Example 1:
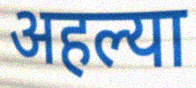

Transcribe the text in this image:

अहल्या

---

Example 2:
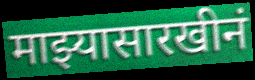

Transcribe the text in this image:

माझ्यासारखीनं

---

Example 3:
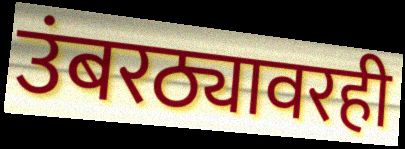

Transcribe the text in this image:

उंबरठ्यावरही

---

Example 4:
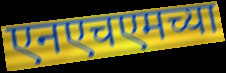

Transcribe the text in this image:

एनएचएमच्या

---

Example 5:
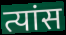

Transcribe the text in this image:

त्यांस